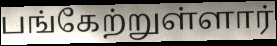
பங்கேற்றுள்ளார்